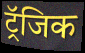
ट्रॅजिक